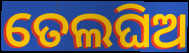
ତେଲଘିଅ